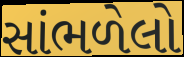
સાંભળેલો